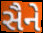
સૈને